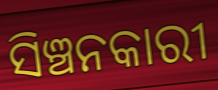
ସିଞ୍ଚନକାରୀ